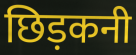
छिड़कनी